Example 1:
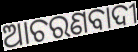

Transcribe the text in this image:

ଆଚରଣବାଦୀ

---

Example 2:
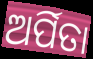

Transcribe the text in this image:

ଅର୍ପିତା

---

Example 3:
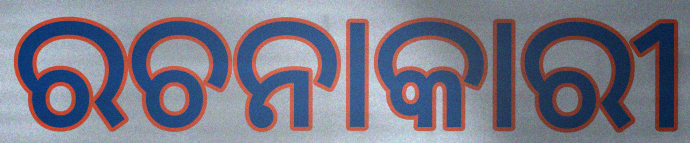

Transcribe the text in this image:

ରଚନାକାରୀ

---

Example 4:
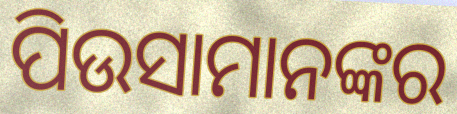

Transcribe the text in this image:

ପିଉସାମାନଙ୍କର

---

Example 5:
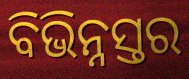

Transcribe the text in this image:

ବିଭିନ୍ନସ୍ତର